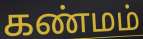
கண்மம்